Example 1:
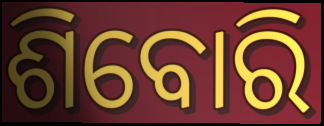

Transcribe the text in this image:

ଶିବୋରି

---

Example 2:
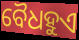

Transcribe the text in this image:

ବୈଧହୁଏ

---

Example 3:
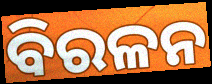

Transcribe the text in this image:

ବିରଳନ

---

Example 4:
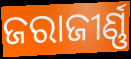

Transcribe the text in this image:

ଜରାଜୀର୍ଣ୍ଣ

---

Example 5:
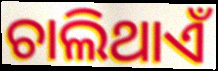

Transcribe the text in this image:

ଚାଲିଥାଏଁ